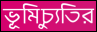
ভূমিচ্যুতির